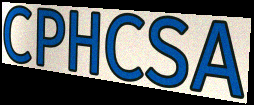
CPHCSA